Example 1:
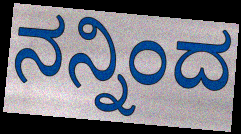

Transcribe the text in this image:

ನನ್ನಿಂದ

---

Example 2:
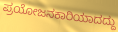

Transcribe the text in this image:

ಪ್ರಯೋಜನಕಾರಿಯಾದದ್ದು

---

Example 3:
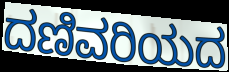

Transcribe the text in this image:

ದಣಿವರಿಯದ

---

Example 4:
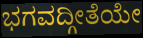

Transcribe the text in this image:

ಭಗವದ್ಗೀತೆಯೇ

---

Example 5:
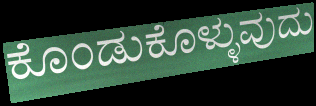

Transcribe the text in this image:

ಕೊಂಡುಕೊಳ್ಳುವುದು